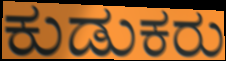
ಕುಡುಕರು